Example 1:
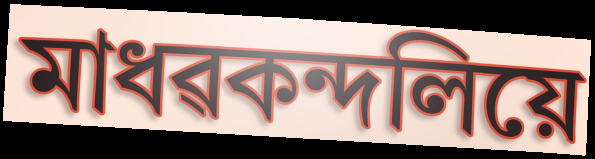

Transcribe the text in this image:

মাধৱকন্দলিয়ে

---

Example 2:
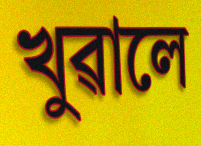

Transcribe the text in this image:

খুৱালে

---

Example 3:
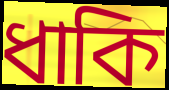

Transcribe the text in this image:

ধাকি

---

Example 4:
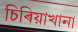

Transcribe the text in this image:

চিৰিয়াখানা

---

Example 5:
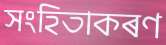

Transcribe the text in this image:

সংহিতাকৰণ